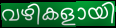
വഴികളായി